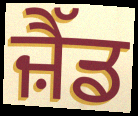
ਜ਼ੈੱਡ